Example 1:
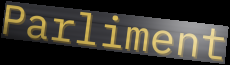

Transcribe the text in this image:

Parliment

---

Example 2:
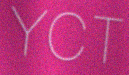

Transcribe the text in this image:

YCT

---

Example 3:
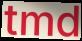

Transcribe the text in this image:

tmd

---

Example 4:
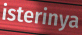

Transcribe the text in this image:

isterinya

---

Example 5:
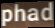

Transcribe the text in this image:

phad